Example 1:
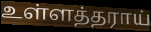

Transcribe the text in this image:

உள்ளத்தராய்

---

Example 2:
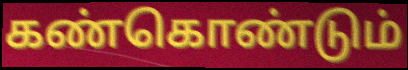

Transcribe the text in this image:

கண்கொண்டும்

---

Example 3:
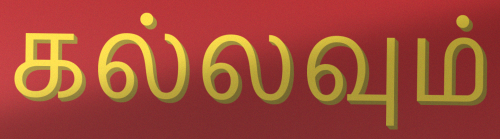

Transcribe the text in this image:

கல்லவும்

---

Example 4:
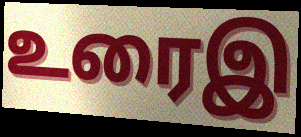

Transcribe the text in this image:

உரைஇ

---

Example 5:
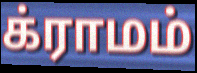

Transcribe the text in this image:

க்ராமம்